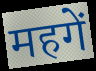
महगें